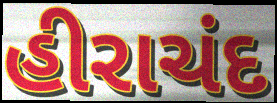
હીરાચંદ